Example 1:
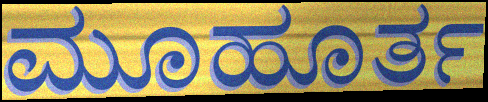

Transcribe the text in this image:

ಮೂಹೂರ್ತ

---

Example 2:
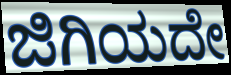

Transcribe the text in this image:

ಜಿಗಿಯದೇ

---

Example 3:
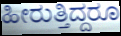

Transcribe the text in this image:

ಹೀರುತ್ತಿದ್ದರೂ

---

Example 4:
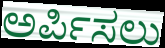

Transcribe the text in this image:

ಅರ್ಪಿಸಲು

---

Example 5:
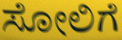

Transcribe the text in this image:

ಸೋಲಿಗೆ